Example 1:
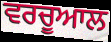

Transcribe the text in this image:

ਵਰਚੂਆਲ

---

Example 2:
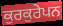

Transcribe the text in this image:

ਕੁਰਕੁਰੇਪਨ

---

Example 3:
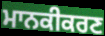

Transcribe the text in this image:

ਮਾਨਕੀਕਰਣ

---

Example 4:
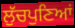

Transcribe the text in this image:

ਲੁੱਚਪੁਣਿਆਂ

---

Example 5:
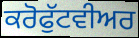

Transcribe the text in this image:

ਕਰੋਫੁੱਟਵੀਅਰ